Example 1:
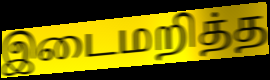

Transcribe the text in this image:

இடைமறித்த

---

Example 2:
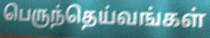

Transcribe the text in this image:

பெருந்தெய்வங்கள்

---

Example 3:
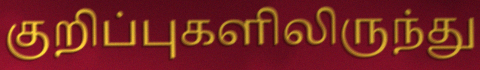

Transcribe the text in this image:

குறிப்புகளிலிருந்து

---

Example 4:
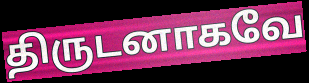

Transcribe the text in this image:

திருடனாகவே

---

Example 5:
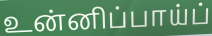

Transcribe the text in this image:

உன்னிப்பாய்ப்